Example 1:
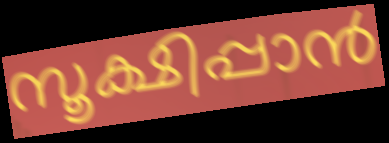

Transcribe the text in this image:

സൂക്ഷിപ്പാൻ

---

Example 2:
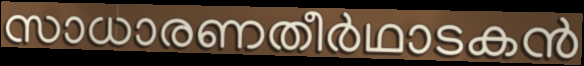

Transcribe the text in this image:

സാധാരണതീർഥാടകൻ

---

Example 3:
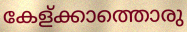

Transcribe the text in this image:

കേള്ക്കാത്തൊരു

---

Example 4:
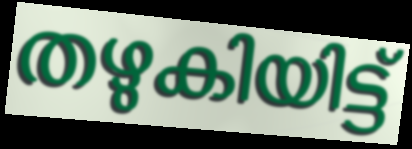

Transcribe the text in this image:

തഴുകിയിട്ട്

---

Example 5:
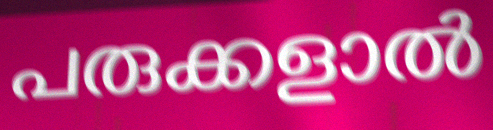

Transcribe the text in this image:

പരുക്കളാൽ